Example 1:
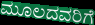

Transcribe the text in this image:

ಮೂಲದವರಿಗೆ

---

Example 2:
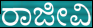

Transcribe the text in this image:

ರಾಜೀವಿ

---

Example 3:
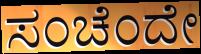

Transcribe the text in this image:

ಸಂಚೆಂದೇ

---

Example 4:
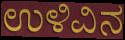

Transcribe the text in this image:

ಉಳಿವಿನ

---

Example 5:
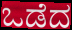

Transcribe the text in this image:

ಒಡೆದ